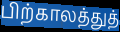
பிற்காலத்துத்